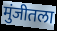
मुंजीतला